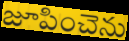
జూపించెను